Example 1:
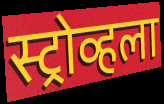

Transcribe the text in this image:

स्ट्रोव्हला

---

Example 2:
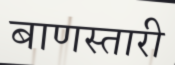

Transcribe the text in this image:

बाणस्तारी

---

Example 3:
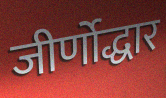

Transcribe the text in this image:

जीर्णोद्धार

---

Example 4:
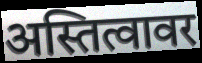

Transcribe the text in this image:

अस्तित्वावर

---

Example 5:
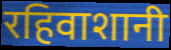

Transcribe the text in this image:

रहिवाशानी